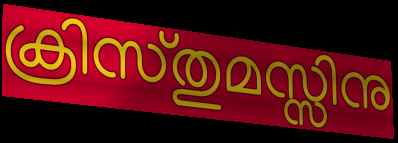
ക്രിസ്തുമസ്സിനു